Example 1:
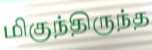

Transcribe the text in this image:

மிகுந்திருந்த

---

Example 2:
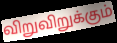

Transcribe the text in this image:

விறுவிறுக்கும்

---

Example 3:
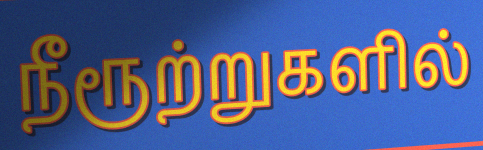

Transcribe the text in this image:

நீரூற்றுகளில்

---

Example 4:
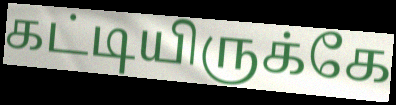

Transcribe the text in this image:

கட்டியிருக்கே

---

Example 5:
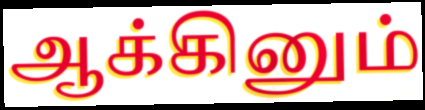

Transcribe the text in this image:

ஆக்கினும்